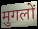
मुगलों